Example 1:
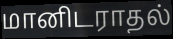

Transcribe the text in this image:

மானிடராதல்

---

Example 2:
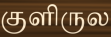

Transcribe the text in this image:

குளிருல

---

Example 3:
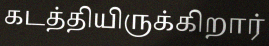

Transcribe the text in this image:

கடத்தியிருக்கிறார்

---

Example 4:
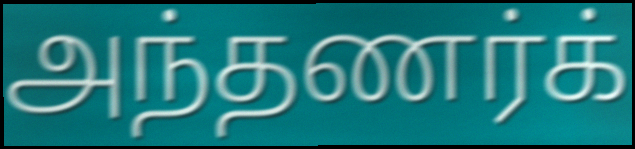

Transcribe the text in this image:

அந்தணர்க்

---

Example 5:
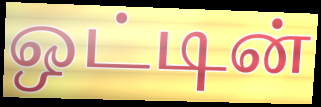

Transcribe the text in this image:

ஒட்டின்